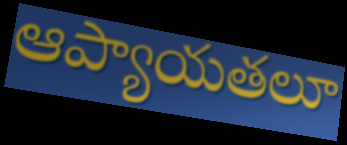
ఆప్యాయతలూ